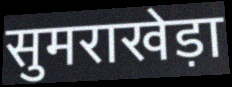
सुमराखेड़ा